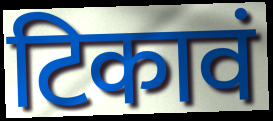
टिकावं